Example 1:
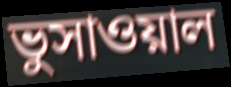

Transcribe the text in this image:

ভুসাওয়াল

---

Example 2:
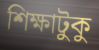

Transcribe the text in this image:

শিক্ষাটুকু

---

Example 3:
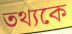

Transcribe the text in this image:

তথ্যকে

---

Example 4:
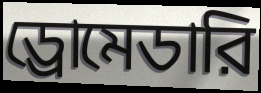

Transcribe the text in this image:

ড্রোমেডারি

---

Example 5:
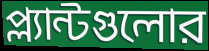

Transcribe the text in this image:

প্ল্যান্টগুলোর